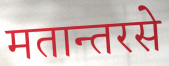
मतान्तरसे